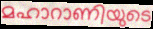
മഹാറാണിയുടെ